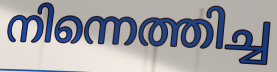
നിന്നെത്തിച്ച